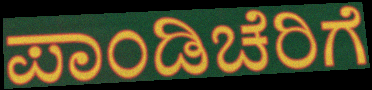
ಪಾಂಡಿಚೆರಿಗೆ